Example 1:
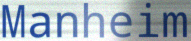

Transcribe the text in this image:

Manheim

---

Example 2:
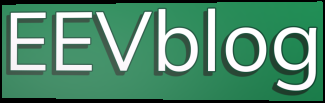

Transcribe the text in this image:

EEVblog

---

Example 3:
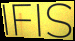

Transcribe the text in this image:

IFIS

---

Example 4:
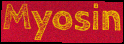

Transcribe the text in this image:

Myosin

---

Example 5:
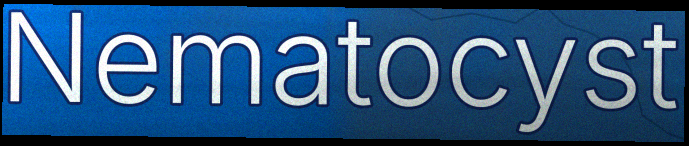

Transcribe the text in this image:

Nematocyst